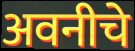
अवनीचे